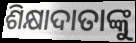
ଶିକ୍ଷାଦାତାଙ୍କୁ